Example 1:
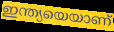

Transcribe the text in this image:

ഇന്ത്യയെയാണ്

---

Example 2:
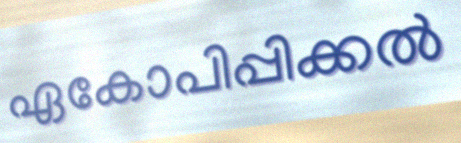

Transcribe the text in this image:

ഏകോപിപ്പിക്കൽ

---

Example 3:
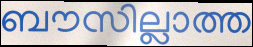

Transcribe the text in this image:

ബൗസില്ലാത്ത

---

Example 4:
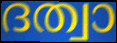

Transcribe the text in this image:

ദത്വാ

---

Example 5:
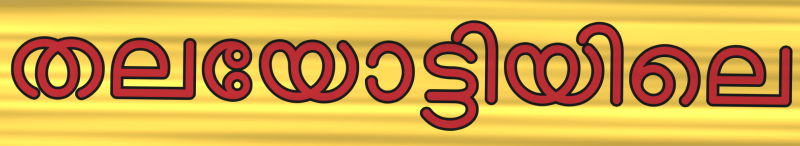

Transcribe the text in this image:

തലയോട്ടിയിലെ